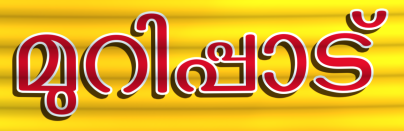
മുറിപ്പാട്